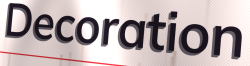
Decoration